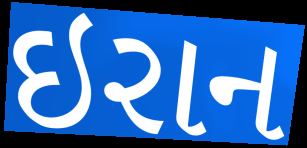
ઇરાન